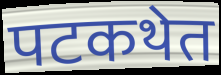
पटकथेत